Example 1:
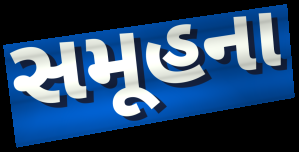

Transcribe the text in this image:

સમૂહના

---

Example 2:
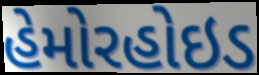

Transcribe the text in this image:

હેમોરહોઇડ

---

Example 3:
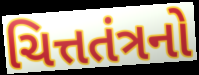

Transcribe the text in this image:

ચિત્તતંત્રનો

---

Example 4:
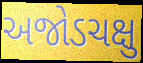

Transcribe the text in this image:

અજોડચક્ષુ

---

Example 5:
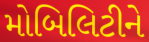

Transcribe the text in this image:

મોબિલિટીને